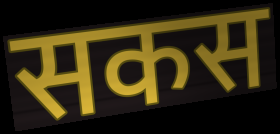
सकस